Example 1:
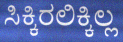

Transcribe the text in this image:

ಸಿಕ್ಕಿರಲಿಕ್ಕಿಲ್ಲ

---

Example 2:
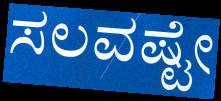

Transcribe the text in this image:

ಸಲವಷ್ಟೇ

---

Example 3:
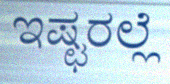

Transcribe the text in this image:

ಇಷ್ಟರಲ್ಲೆ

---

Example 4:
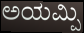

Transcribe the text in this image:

ಅಯಮ್ಪಿ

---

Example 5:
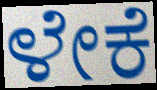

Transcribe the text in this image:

ಳೇಕೆ